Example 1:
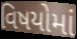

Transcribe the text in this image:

વિષયોમાં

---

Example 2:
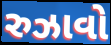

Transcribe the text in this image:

રુઝાવો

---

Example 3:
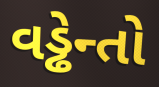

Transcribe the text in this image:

વડ્ઢેન્તો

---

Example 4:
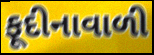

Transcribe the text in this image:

ફૂદીનાવાળી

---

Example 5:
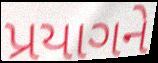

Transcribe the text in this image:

પ્રયાગને